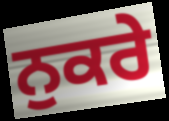
ਨੁਕਰੇ